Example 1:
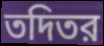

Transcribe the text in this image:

তদিতর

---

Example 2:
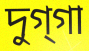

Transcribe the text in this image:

দুগ্‌গা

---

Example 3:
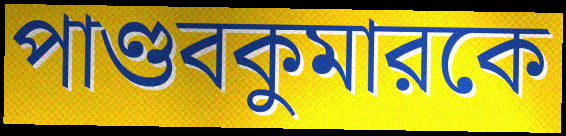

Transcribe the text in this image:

পাণ্ডবকুমারকে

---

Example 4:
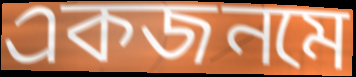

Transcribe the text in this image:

একজনমে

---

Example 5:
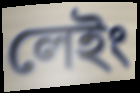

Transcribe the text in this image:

লেইং